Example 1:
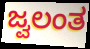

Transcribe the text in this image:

ಜ್ವಲಂತ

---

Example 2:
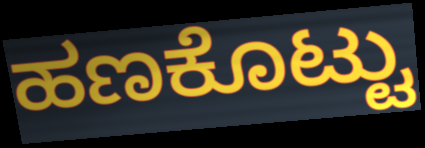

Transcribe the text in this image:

ಹಣಕೊಟ್ಟು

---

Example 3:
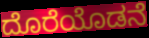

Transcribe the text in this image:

ದೊರೆಯೊಡನೆ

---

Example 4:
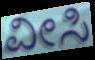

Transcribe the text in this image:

ವೀಸಿ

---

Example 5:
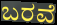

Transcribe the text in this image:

ಬರವೆ